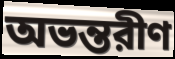
অভন্তরীণ